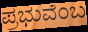
ಪ್ರಭುವೆಂಬ